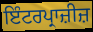
ਇੰਟਰਪ੍ਰਾਜ਼ੀਜ਼